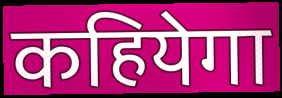
कहियेगा